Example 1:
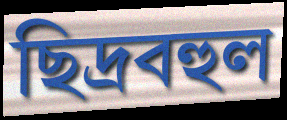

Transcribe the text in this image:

ছিদ্রবহুল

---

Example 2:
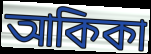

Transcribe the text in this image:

আকিকা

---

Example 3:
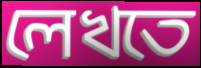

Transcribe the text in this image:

লেখতে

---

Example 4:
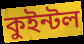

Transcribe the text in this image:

কুইন্টল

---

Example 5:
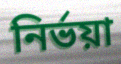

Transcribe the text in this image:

নির্ভয়া